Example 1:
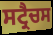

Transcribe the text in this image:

ਸਟ੍ਰੈਚਸ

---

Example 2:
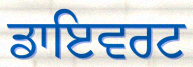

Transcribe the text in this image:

ਡਾਇਵਰਟ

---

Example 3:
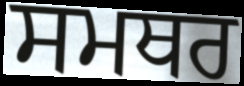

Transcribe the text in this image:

ਸਮਥਰ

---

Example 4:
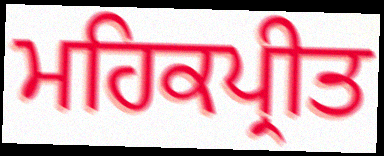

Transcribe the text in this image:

ਮਹਿਕਪ੍ਰੀਤ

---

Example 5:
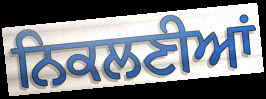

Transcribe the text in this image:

ਨਿਕਲਣੀਆਂ